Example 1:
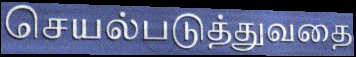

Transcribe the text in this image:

செயல்படுத்துவதை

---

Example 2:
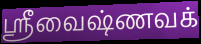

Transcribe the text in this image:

ஸ்ரீவைஷ்ணவக்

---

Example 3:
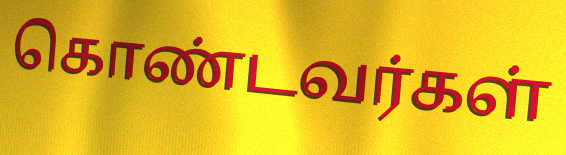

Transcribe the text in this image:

கொண்டவர்கள்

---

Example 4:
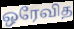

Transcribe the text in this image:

ஒரேவித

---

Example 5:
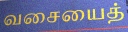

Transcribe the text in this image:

வசையைத்